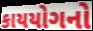
કાયયોગનો